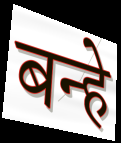
बन्हे